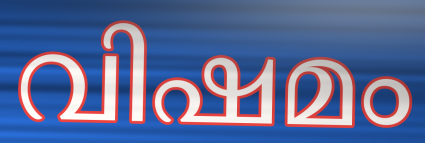
വിഷമം